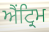
ਐਂਟ੍ਰਿਮ